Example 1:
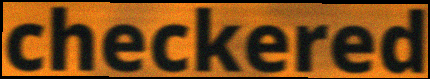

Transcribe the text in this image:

checkered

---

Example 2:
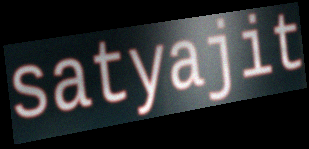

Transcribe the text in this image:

satyajit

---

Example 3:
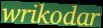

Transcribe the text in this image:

wrikodar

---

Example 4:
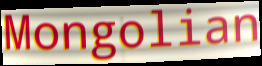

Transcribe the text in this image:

Mongolian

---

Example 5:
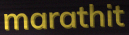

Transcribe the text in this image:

marathit